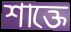
শাক্তে